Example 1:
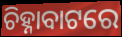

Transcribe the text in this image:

ଚିହ୍ନାବାଟରେ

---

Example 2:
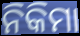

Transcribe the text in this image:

ନିକିମା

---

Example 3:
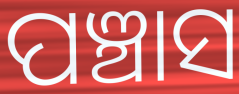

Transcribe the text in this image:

ପଞ୍ଚାସ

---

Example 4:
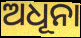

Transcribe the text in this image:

ଅଧୂନା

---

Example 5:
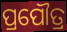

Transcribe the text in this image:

ପ୍ରପୌତ୍ର